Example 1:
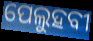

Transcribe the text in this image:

ପେଲୁହବୀ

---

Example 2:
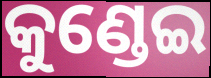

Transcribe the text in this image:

କୁଣ୍ଡେଇ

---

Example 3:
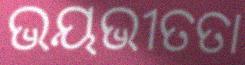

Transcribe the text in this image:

ଭୟଭୀତତା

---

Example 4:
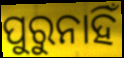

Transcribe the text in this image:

ପୁରୁନାହିଁ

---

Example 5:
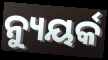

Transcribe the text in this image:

ନ୍ୟୁୟର୍କ